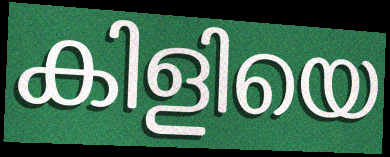
കിളിയെ